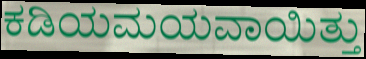
ಕಡಿಯಮಯವಾಯಿತ್ತು